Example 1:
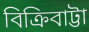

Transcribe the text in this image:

বিক্রিবাট্টা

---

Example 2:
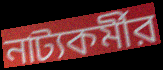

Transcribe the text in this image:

নাট্যকর্মীর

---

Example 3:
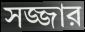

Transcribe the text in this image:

সজ্জার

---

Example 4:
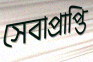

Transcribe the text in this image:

সেবাপ্রাপ্তি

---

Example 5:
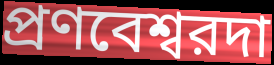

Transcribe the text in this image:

প্রণবেশ্বরদা